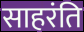
साहरंति